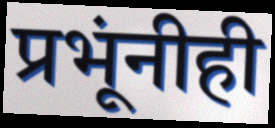
प्रभूंनीही